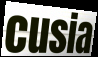
cusia